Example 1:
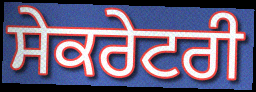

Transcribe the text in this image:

ਸੇਕਰੇਟਰੀ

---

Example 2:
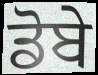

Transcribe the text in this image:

ਡੋਬੇ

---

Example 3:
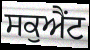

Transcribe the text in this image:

ਸਕੁਐਂਟ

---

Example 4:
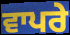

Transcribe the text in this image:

ਵਾਪਰੇ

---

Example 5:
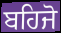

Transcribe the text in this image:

ਬਹਿਜੋ